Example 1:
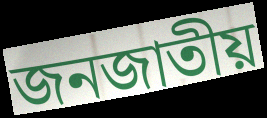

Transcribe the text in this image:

জনজাতীয়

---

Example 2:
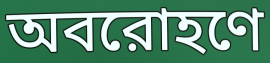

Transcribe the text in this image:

অবরোহণে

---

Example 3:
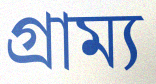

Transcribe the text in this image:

গ্রাম্য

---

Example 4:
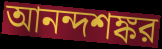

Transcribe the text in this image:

আনন্দশঙ্কর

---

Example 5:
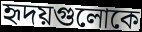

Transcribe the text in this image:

হৃদয়গুলোকে